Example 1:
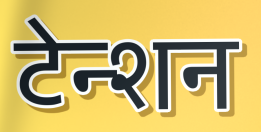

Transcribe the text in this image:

टेन्शन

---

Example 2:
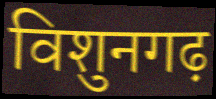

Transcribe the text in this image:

विशुनगढ़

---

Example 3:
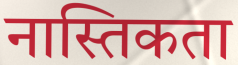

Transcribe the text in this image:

नास्तिकता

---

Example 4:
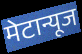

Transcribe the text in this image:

मेटान्यूज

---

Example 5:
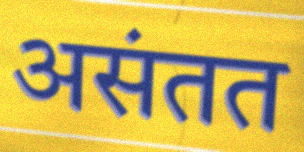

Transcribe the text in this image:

असंतत